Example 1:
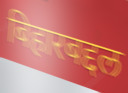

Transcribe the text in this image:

बिहारबद्दल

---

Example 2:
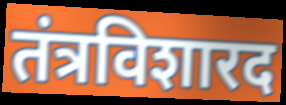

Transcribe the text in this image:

तंत्रविशारद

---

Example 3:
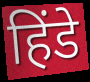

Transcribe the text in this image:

हिंडे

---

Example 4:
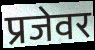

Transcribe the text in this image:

प्रजेवर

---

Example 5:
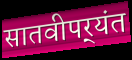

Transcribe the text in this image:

सातवीपर्यंत